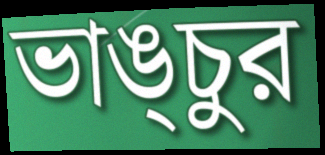
ভাঙ্চুর